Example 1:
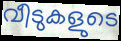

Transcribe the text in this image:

വീടുകളുടെ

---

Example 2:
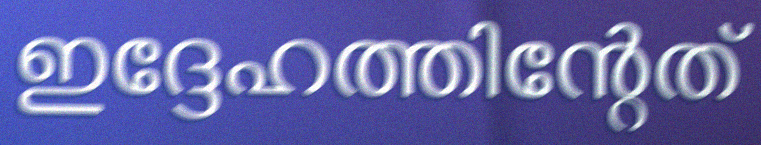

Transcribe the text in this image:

ഇദ്ദേഹത്തിന്റേത്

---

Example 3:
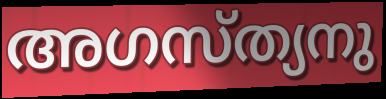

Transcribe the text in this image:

അഗസ്ത്യനു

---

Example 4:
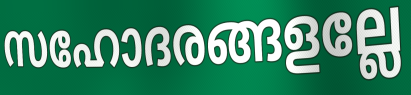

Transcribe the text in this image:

സഹോദരങ്ങളല്ലേ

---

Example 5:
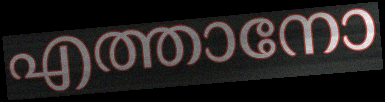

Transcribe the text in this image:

എത്താനോ